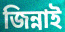
জিন্নাই